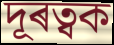
দূৰত্বক